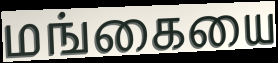
மங்கையை